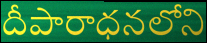
దీపారాధనలోని